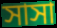
সাসা